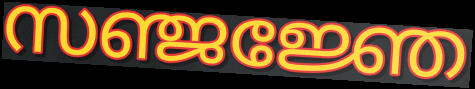
സഞ്ജജ്ഞേ